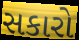
સકારો